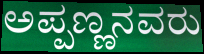
ಅಪ್ಪಣ್ಣನವರು